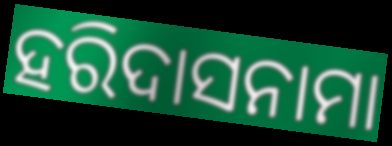
ହରିଦାସନାମା